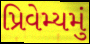
પ્રિવેમ્યમું